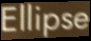
Ellipse